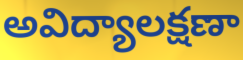
అవిద్యాలక్షణా